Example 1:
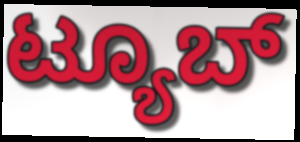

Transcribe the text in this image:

ಟ್ಯೂಬ್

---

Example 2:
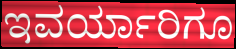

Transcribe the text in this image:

ಇವರ್ಯಾರಿಗೂ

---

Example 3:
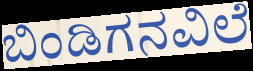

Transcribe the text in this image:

ಬಿಂಡಿಗನವಿಲೆ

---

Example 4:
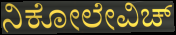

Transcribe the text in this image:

ನಿಕೋಲೇವಿಚ್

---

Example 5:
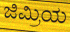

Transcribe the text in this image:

ಜಿಮ್ರಿಯ